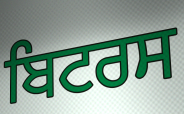
ਬਿਟਰਸ